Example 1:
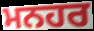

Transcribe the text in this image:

ਮਨਹਰ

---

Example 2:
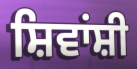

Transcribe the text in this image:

ਸ਼ਿਵਾਂਸ਼ੀ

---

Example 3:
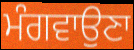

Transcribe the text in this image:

ਮੰਗਵਾਉਣਾ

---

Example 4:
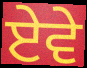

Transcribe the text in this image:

ਏਵੇ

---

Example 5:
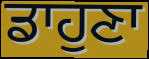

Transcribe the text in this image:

ਡਾਹੁਣਾ